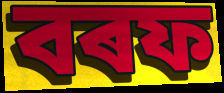
বৰফ